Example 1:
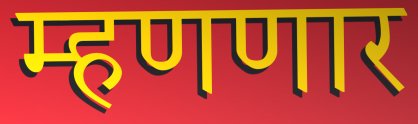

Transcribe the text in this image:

म्हणणार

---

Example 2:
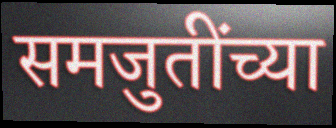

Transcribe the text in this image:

समजुतींच्या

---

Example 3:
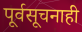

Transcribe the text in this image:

पूर्वसूचनाही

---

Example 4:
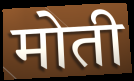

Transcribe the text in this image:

मोती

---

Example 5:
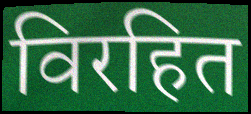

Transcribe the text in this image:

विरहित